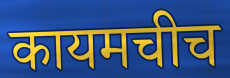
कायमचीच